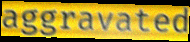
aggravated